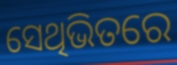
ସେଥିଭିତରେ